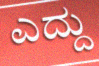
ಎದ್ದು